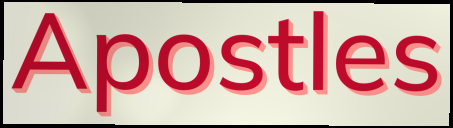
Apostles